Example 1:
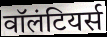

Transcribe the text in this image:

वॉलंटियर्स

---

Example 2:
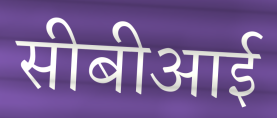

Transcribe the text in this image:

सीबीआई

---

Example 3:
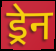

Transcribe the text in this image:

ड्रेन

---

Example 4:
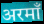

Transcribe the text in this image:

अरमाँ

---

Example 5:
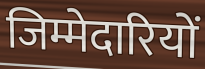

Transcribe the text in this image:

जिम्मेदारियों